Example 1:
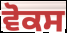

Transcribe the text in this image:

ਵੋਕਸ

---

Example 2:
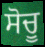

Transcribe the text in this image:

ਸੋਚੂ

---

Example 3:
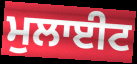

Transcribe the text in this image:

ਮੁਲਾਈਟ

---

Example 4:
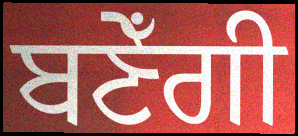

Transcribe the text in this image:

ਬਣੇਁਗੀ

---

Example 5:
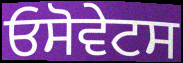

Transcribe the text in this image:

ਓਸੋਵੇਟਸ